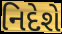
નિદેશે